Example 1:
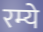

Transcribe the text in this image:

रम्ये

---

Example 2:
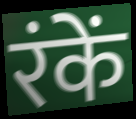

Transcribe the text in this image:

रंकें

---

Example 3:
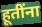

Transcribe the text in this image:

हूतींना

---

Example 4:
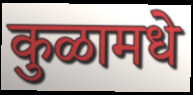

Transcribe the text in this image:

कुळामधे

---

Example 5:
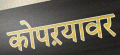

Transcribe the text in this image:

कोपऱयावर